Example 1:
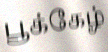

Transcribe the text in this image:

பூக்கேழ்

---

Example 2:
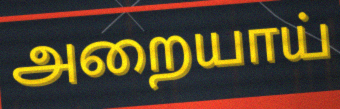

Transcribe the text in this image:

அறையாய்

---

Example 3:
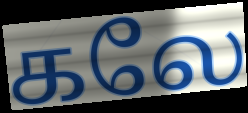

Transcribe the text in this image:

கலே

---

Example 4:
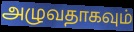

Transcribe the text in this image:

அழுவதாகவும்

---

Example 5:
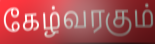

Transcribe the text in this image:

கேழ்வரகும்